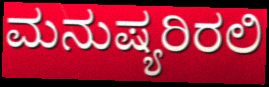
ಮನುಷ್ಯರಿರಲಿ